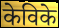
केविके